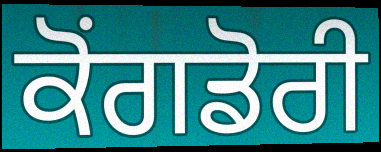
ਕੋਂਗਡੋਰੀ